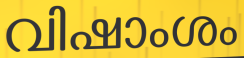
വിഷാംശം